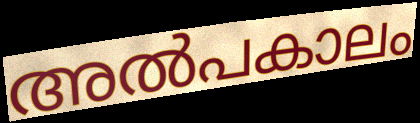
അൽപകാലം